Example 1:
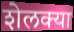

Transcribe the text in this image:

शेलक्या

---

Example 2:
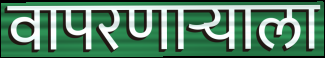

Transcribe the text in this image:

वापरणार्‍याला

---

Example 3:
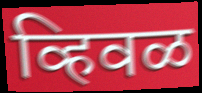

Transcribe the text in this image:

व्हिवळ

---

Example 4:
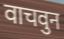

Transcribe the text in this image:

वाचवुन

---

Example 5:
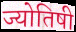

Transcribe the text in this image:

ज्योतिषी